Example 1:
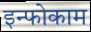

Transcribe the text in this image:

इन्फोकाम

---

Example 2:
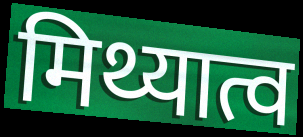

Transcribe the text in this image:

मिथ्यात्व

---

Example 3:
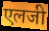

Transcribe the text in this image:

एलजी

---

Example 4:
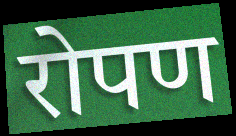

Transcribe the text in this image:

रोपण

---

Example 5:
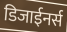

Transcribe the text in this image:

डिजाईनर्स